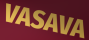
VASAVA